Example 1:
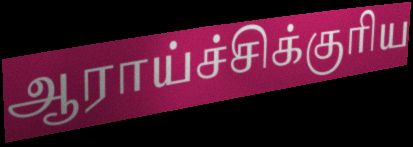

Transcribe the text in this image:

ஆராய்ச்சிக்குரிய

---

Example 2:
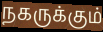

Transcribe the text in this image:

நகருக்கும்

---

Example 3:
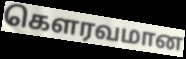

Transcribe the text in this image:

கெளரவமான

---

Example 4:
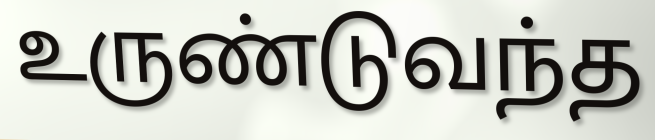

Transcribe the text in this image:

உருண்டுவந்த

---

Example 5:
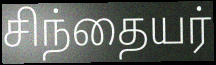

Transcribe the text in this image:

சிந்தையர்